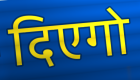
दिएगो